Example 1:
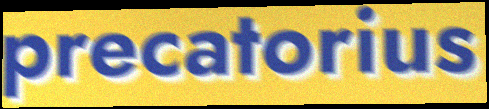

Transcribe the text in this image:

precatorius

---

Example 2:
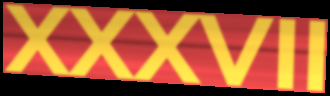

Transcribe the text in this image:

XXXVII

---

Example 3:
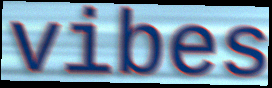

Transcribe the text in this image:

vibes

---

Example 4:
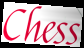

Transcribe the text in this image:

Chess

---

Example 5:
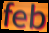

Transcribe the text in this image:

feb